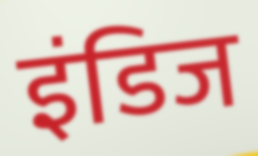
इंडिज